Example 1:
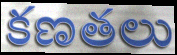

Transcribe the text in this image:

కణతలు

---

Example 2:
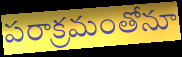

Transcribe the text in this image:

పరాక్రమంతోనూ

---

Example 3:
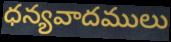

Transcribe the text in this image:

ధన్యవాదములు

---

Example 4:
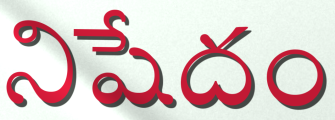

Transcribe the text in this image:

నిషేదం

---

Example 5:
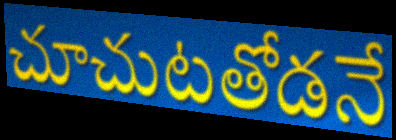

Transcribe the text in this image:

చూచుటతోడనే